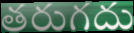
తరుగదు